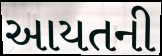
આયતની